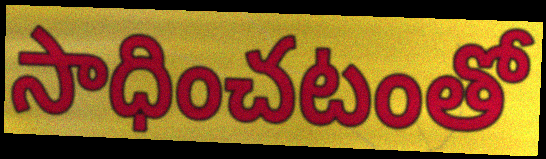
సాధించటంతో